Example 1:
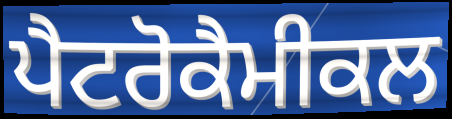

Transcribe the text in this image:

ਪੈਟਰੋਕੈਮੀਕਲ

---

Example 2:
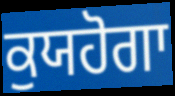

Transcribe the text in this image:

ਕੁਯਹੋਗਾ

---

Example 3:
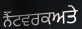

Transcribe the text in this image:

ਨੈੱਟਵਰਕਅਤੇ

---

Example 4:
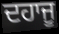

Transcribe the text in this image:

ਦਹਾਜੂ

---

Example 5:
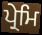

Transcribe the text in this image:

ਪ੍ਰੇਮਿ